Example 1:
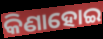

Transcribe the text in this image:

କିଣାହୋଇ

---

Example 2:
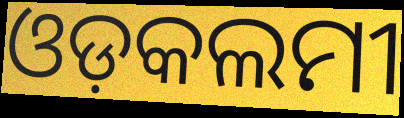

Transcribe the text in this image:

ଓଡ଼କଲମୀ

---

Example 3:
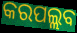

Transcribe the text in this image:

କରପଲ୍ଲବ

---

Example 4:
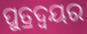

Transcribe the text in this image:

ପୁତ୍ରଦ୍ୱୟର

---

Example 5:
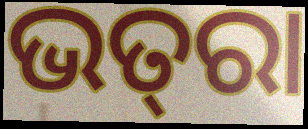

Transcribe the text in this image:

ଭତ୍‌ରା